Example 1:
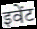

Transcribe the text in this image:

इवेंट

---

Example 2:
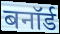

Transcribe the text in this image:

बनॉर्ड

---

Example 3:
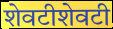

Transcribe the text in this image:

शेवटीशेवटी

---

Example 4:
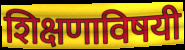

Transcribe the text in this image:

शिक्षणाविषयी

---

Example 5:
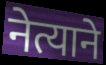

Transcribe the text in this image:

नेत्याने